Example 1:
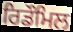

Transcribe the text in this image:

ਰਿਡੌਮਿਲ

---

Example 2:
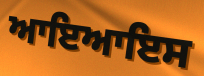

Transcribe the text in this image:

ਆਇਆਇਸ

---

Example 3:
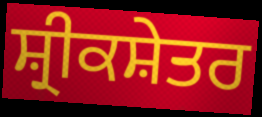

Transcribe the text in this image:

ਸ਼੍ਰੀਕਸ਼ੇਤਰ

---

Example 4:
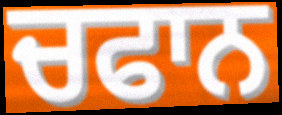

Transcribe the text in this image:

ਚਫਾਨ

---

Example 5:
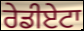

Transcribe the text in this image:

ਰੇਡੀਏਟਾ